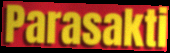
Parasakti